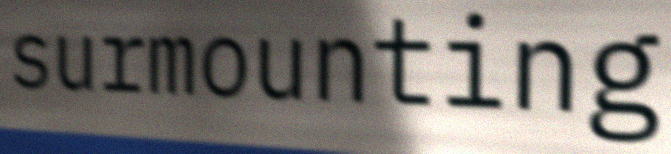
surmounting